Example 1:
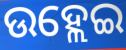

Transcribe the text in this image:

ଉହ୍ଲେଇ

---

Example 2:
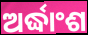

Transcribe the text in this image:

ଅର୍ଦ୍ଧାଂଶ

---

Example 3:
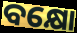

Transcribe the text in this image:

ବକ୍ଷୋ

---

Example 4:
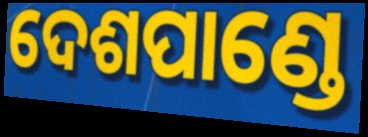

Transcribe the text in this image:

ଦେଶପାଣ୍ଡେ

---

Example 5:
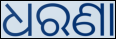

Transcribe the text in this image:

ଧରଣା